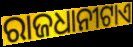
ରାଜଧାନୀଟାଏ